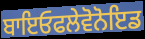
ਬਾਇਓਫਲੇਵੋਨੋਇਡ